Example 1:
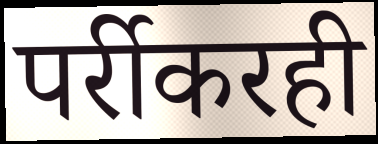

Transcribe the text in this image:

पर्रीकरही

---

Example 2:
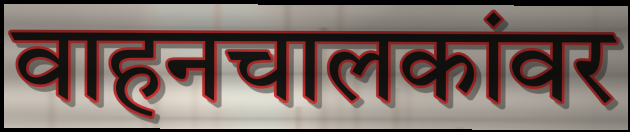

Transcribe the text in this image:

वाहनचालकांवर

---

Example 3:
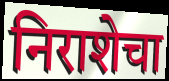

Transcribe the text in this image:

निराशेचा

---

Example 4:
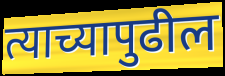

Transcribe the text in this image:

त्याच्यापुढील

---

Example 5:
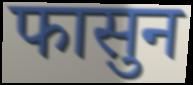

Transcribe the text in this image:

फासुन